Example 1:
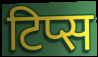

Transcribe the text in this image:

टिप्‍स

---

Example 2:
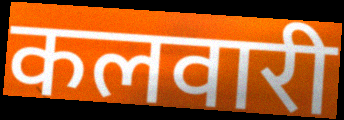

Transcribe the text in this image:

कलवारी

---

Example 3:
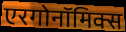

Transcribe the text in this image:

एरगोनॉमिक्स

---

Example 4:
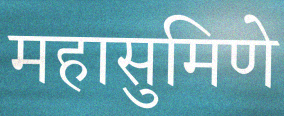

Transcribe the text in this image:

महासुमिणे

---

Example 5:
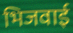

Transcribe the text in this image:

भिजवाई